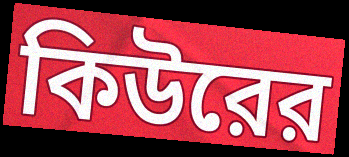
কিউরের